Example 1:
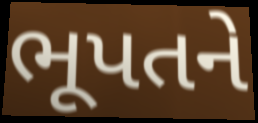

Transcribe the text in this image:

ભૂપતને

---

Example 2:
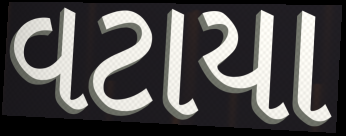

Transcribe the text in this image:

વટાયા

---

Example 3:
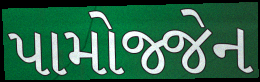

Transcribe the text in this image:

પામોજ્જેન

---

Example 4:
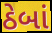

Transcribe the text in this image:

ઠેબાં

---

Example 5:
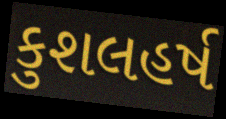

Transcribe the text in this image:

કુશલહર્ષ